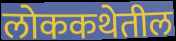
लोककथेतील